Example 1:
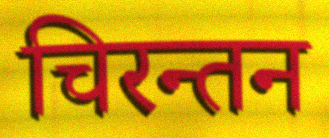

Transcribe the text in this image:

चिरन्तन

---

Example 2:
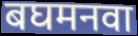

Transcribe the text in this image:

बघमनवा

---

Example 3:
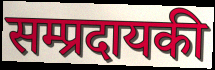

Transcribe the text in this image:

सम्प्रदायकी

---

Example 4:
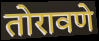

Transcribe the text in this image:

तोरावणे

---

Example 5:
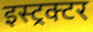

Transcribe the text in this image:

इस्ट्रक्टर